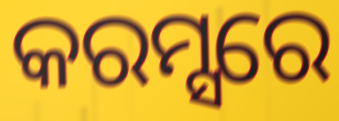
କରମ୍ସରେ